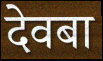
देवबा